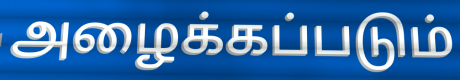
அழைக்கப்படும்